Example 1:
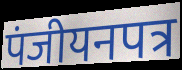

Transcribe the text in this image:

पंजीयनपत्र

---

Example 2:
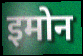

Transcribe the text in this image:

इमोन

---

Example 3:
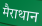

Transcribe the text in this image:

मैराथान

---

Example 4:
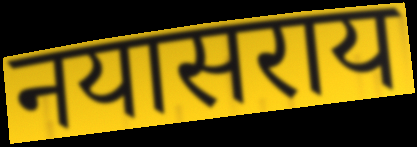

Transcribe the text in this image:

नयासराय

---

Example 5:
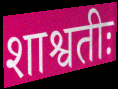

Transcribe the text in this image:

शाश्वतीः